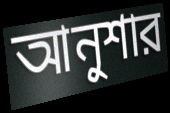
আনুশার